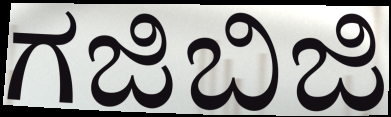
ಗಜಿಬಿಜಿ